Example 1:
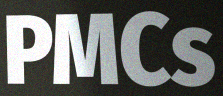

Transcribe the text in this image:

PMCs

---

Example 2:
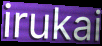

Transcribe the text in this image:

irukai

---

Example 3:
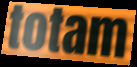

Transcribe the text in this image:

totam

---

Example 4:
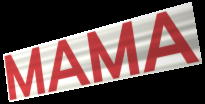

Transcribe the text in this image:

MAMA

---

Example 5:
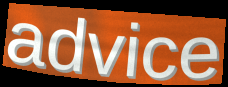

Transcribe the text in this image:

advice